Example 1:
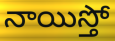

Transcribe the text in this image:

నాయిస్తో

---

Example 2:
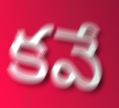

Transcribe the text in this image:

కవే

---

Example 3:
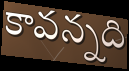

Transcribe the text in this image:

కావన్నది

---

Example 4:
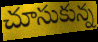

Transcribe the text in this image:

చూసుకున్న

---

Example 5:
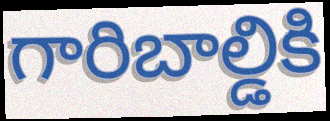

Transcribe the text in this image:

గారిబాల్డికి